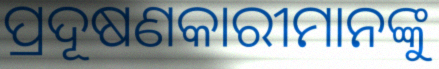
ପ୍ରଦୂଷଣକାରୀମାନଙ୍କୁ